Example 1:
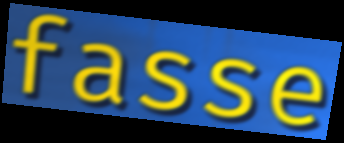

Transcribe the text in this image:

fasse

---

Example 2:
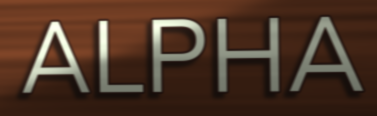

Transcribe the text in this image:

ALPHA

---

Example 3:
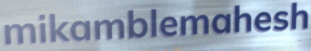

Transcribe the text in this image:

mikamblemahesh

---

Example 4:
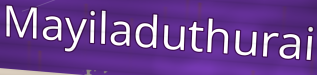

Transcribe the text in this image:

Mayiladuthurai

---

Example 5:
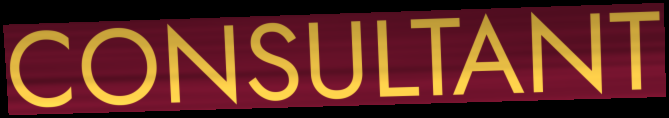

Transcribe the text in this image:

CONSULTANT